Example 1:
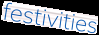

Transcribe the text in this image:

festivities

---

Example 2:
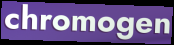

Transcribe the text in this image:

chromogen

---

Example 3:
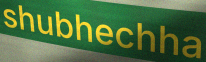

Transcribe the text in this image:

shubhechha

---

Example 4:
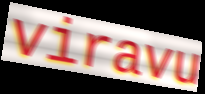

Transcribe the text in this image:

viravu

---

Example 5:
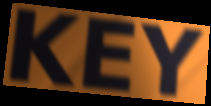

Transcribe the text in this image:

KEY